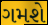
ગમશે